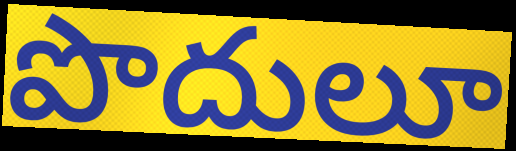
పొదులూ